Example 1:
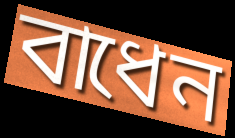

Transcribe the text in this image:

বাধেন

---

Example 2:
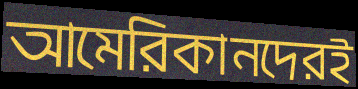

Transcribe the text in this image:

আমেরিকানদেরই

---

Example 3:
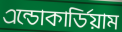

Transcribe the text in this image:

এন্ডোকার্ডিয়াম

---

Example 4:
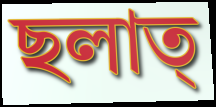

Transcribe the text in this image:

ছলাত্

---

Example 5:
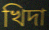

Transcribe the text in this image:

খিদা